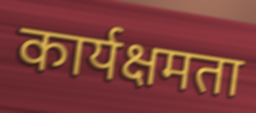
कार्यक्षमता